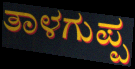
ತಾಳಗುಪ್ಪ